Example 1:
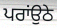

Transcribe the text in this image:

ਪਰਾਂਉਠੇ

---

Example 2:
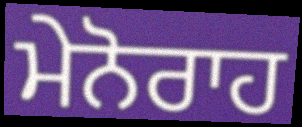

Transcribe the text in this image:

ਮੇਨੋਰਾਹ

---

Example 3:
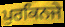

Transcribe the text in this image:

ਪੁਰਕਿਨਜੇ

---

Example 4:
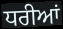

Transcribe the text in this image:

ਧਰੀਆਂ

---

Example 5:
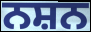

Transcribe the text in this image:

ਨਸ਼ਨ